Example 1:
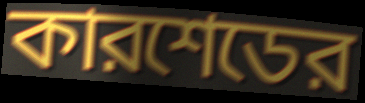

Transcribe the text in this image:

কারশেডের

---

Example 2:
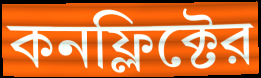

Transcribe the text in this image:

কনফ্লিক্টের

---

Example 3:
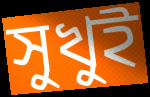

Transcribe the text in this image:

সুখুই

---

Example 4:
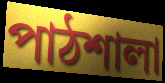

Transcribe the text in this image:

পাঠশালা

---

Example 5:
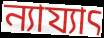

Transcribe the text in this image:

ন্যায্যাৎ